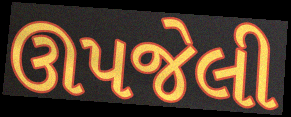
ઊપજેલી